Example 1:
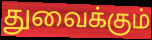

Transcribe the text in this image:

துவைக்கும்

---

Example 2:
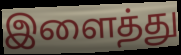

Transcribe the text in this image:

இளைத்து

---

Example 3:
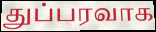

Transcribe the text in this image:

துப்பரவாக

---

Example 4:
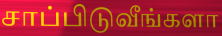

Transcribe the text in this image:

சாப்பிடுவீங்களா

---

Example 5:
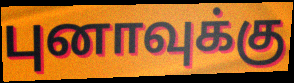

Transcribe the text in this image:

புனாவுக்கு